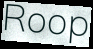
Roop